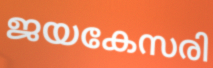
ജയകേസരി